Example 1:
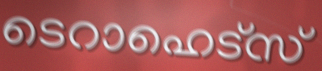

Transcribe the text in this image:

ടെറാഹെട്സ്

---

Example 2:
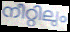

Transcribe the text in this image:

നീറ്റിലും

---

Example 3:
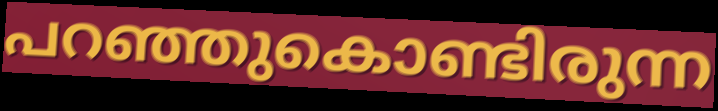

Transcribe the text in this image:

പറഞ്ഞുകൊണ്ടിരുന്ന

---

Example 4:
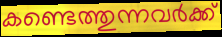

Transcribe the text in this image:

കണ്ടെത്തുന്നവർക്ക്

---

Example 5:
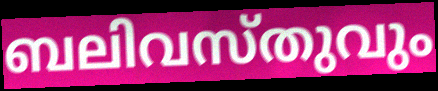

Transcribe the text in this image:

ബലിവസ്തുവും